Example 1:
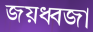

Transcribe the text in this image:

জয়ধ্বজা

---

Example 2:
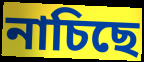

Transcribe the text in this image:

নাচিছে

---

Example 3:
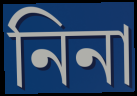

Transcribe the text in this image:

নিনা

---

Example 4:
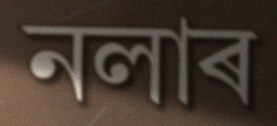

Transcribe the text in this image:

নলাৰ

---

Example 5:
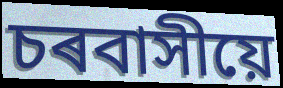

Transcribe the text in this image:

চৰবাসীয়ে